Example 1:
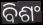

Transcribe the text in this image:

ବିଶଂ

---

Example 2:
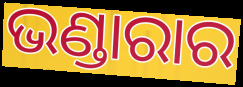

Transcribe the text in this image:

ଭଣ୍ଡାରାର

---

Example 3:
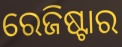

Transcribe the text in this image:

ରେଜିଷ୍ଟାର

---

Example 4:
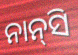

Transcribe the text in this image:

ନାନ୍‌ସି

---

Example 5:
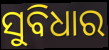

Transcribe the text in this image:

ସୁବିଧାର